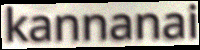
kannanai